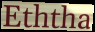
Eththa